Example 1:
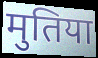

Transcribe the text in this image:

मुतिया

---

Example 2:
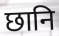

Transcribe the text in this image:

छानि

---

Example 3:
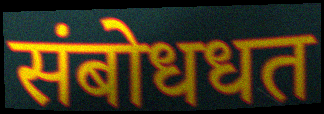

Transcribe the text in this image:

संबोधधत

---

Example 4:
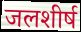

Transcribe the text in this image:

जलशीर्ष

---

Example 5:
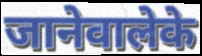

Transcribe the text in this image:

जानेवालेके